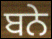
ਬਨੇ